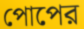
পোপের